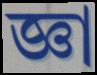
জ্ঞা